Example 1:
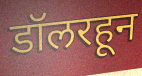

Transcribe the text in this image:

डॉलरहून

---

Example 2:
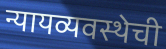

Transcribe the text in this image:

न्यायव्यवस्थेची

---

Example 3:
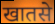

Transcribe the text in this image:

खातसे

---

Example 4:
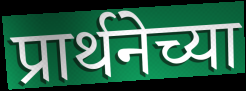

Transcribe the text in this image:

प्रार्थनेच्या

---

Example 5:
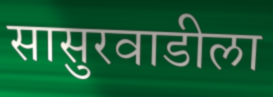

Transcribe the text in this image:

सासुरवाडीला